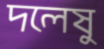
দলেষু